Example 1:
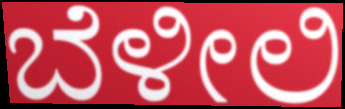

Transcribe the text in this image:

ಬೆಳೀಲಿ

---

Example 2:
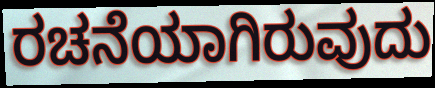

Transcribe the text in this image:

ರಚನೆಯಾಗಿರುವುದು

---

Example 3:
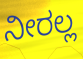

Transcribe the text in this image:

ನೀರಲ್ಲ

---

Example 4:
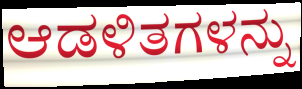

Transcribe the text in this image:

ಆಡಳಿತಗಳನ್ನು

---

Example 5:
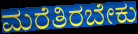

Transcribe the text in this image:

ಮರೆತಿರಬೇಕು